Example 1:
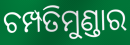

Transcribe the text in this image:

ଚମ୍ପତିମୁଣ୍ଡାର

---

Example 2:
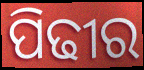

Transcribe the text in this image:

ପିଢୀର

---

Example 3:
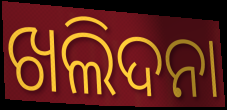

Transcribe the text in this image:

ଖଲିଦନା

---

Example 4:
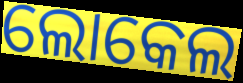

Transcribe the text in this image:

ଲୋକେଲ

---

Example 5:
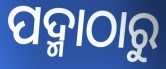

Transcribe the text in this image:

ପଦ୍ମାଠାରୁ